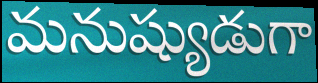
మనుష్యుడుగా